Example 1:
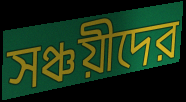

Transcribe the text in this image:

সঞ্চয়ীদের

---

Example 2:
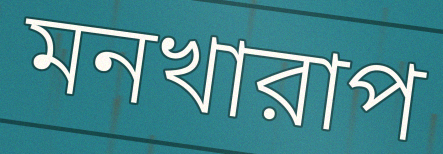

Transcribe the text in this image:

মনখারাপ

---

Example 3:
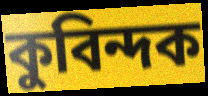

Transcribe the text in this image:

কুবিন্দক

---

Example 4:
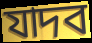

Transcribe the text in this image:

যাদব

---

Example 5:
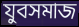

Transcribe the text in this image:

যুবসমাজ